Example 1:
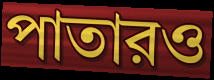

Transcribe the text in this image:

পাতারও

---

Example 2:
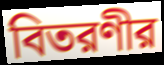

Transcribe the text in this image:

বিতরণীর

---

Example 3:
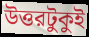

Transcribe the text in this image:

উত্তরটুকুই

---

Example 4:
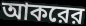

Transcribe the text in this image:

আকরের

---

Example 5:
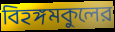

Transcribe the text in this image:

বিহঙ্গমকুলের